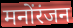
मनोंरंजन